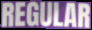
REGULAR